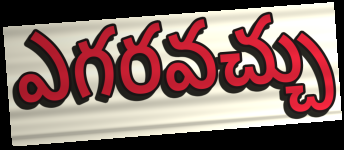
ఎగరవచ్చు